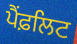
ਪੈਂਫ਼ਲਿਟ